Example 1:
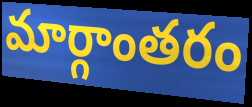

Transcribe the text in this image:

మార్గాంతరం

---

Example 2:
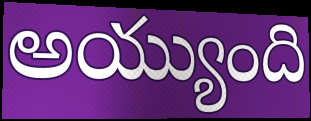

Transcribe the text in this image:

అయ్యుంది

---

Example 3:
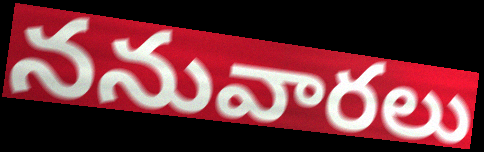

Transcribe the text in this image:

ననువారలు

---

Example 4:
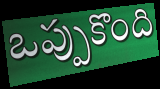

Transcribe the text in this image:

ఒప్పుకొంది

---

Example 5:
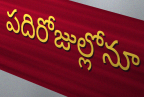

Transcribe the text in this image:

పదిరోజుల్లోనూ